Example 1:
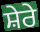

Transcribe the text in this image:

ਸ਼ੇਰੇ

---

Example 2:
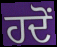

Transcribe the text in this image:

ਹਦੋਂ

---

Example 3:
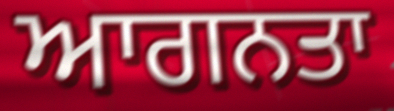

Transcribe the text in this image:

ਆਗਨਤਾ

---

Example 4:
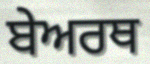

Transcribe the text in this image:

ਬੇਅਰਥ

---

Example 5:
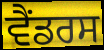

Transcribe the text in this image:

ਵੈਂਡਰਸ